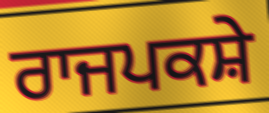
ਰਾਜਪਕਸ਼ੇ